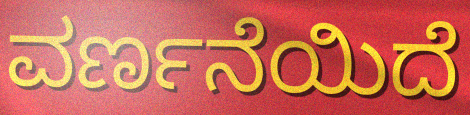
ವರ್ಣನೆಯಿದೆ